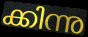
ക്കിന്നു